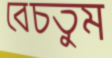
বেচতুম